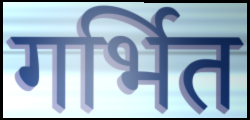
गर्भित